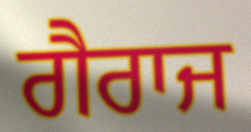
ਗੈਰਾਜ